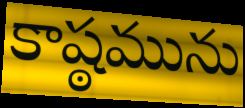
కాష్ఠమును